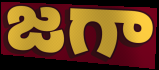
జగా